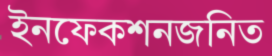
ইনফেকশনজনিত